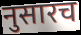
नुसारच